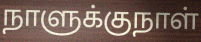
நாளுக்குநாள்